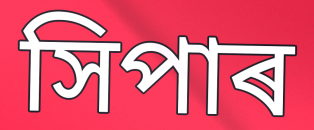
সিপাৰ